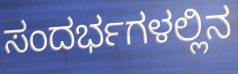
ಸಂದರ್ಭಗಳಲ್ಲಿನ